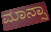
ಮಾನ್ಸಾ